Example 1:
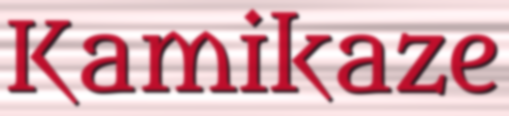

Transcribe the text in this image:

Kamikaze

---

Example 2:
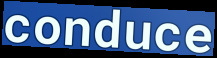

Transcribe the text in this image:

conduce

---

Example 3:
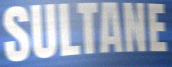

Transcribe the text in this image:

SULTANE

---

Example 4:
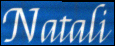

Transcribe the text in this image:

Natali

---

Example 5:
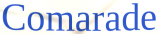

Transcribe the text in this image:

Comarade